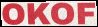
OKOF